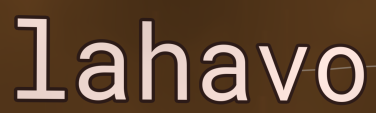
lahavo